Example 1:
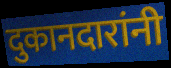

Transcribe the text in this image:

दुकानदारांनी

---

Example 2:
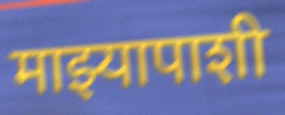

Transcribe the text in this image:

माझ्यापाशी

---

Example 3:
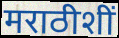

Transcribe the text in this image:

मराठीशीं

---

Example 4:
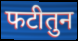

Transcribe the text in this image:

फटीतुन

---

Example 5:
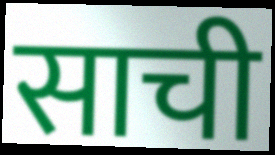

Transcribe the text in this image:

साची